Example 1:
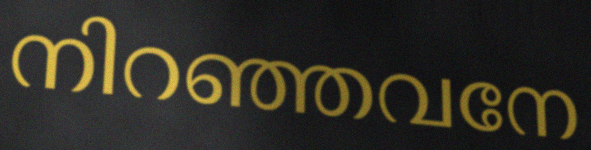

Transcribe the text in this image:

നിറഞ്ഞവനേ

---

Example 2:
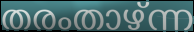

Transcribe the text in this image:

തരംതാഴ്ന്ന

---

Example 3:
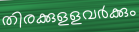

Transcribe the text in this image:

തിരക്കുളളവർക്കും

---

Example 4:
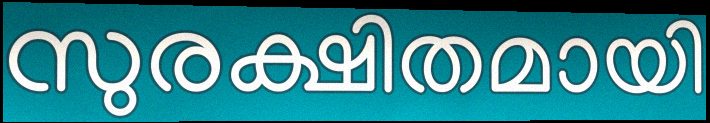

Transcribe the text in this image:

സുരക്ഷിതമായി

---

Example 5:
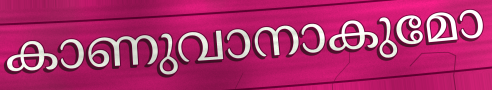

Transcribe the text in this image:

കാണുവാനാകുമോ